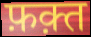
फ़क़्त